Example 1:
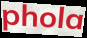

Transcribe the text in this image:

phola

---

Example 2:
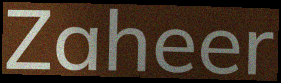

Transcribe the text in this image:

Zaheer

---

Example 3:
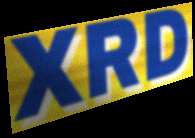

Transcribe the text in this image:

XRD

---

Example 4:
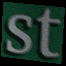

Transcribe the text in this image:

st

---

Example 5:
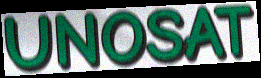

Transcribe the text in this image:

UNOSAT